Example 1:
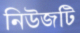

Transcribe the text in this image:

নিউজটি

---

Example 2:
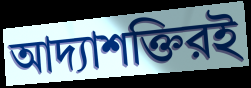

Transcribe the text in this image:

আদ্যাশক্তিরই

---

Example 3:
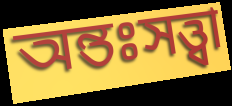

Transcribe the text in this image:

অন্তঃসত্ত্বা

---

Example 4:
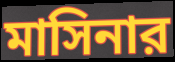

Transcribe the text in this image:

মাসিনার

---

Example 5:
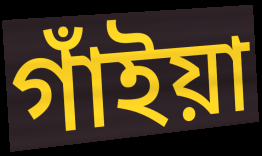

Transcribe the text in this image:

গাঁইয়া